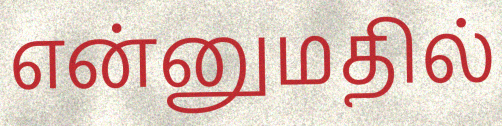
என்னுமதில்